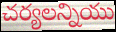
చర్యలన్నియు